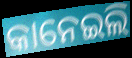
କାନେଇଲି